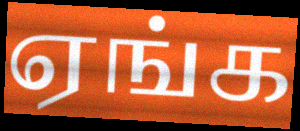
ஏங்க